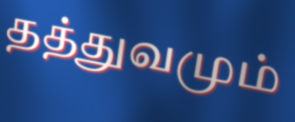
தத்துவமும்